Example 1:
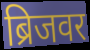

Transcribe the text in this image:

ब्रिजवर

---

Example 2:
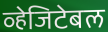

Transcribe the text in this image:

व्हेजिटेबल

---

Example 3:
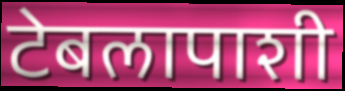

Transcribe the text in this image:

टेबलापाशी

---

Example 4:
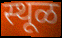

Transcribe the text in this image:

स्थूळ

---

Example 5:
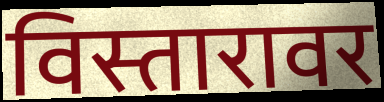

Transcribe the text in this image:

विस्तारावर